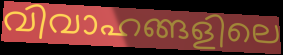
വിവാഹങ്ങളിലെ